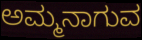
ಅಮ್ಮನಾಗುವ